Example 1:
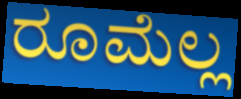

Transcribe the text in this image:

ರೂಮೆಲ್ಲ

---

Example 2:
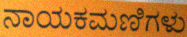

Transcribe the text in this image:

ನಾಯಕಮಣಿಗಳು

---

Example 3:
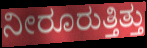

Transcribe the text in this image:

ನೀರೂರುತ್ತಿತ್ತು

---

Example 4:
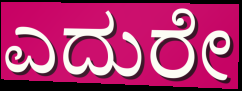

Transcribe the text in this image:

ಎದುರೇ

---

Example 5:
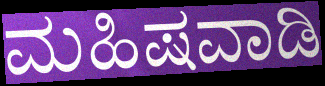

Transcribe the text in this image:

ಮಹಿಷವಾಡಿ